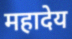
महादेय